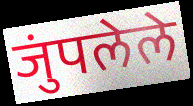
जुंपलेले